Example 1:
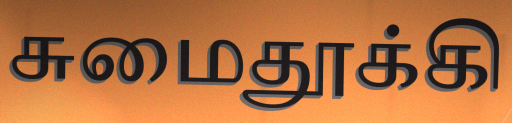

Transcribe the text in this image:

சுமைதூக்கி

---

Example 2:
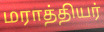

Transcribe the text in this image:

மராத்தியர்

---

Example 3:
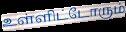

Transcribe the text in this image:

உள்ளிட்டோரும்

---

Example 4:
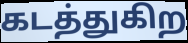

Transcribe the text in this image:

கடத்துகிற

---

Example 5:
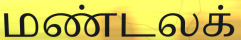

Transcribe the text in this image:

மண்டலக்